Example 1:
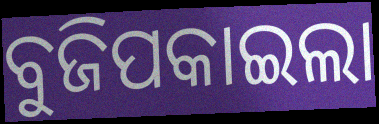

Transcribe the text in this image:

ବୁଜିପକାଇଲା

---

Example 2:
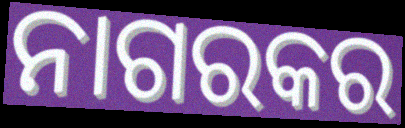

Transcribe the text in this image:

ନାଗରକର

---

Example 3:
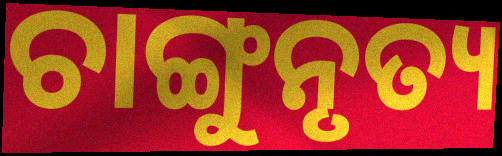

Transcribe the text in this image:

ଚାଙ୍ଗୁନୃତ୍ୟ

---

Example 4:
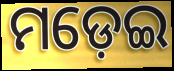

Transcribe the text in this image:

ମଡ଼େଇ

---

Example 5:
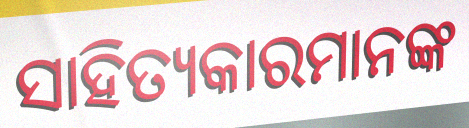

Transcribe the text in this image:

ସାହିତ୍ୟକାରମାନଙ୍କ